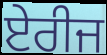
ਏਰੀਜ